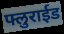
फ्लुराईड